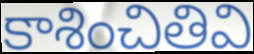
కాశించితివి